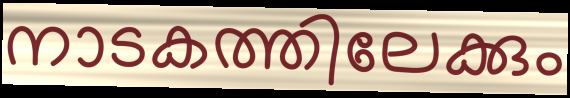
നാടകത്തിലേക്കും